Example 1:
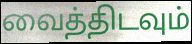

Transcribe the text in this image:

வைத்திடவும்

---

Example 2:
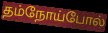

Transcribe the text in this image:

தம்நோய்போல்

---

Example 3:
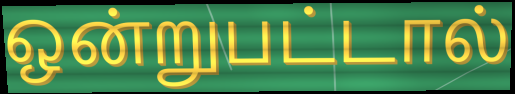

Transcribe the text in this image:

ஒன்றுபட்டால்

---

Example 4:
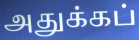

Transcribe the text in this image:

அதுக்கப்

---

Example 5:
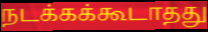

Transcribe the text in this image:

நடக்கக்கூடாதது